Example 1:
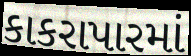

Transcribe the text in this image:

કાકરાપારમાં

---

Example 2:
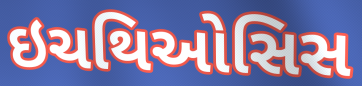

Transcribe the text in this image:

ઇચથિઓસિસ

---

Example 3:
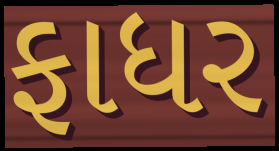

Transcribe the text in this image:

ફાધર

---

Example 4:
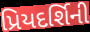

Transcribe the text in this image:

પ્રિયદર્શિની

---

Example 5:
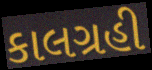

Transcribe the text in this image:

કાલગ્રહી